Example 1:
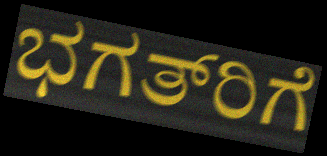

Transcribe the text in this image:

ಭಗತ್‍ರಿಗೆ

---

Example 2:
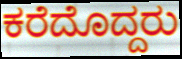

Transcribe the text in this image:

ಕರೆದೊದ್ದರು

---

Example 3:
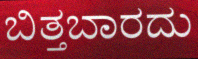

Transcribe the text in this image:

ಬಿತ್ತಬಾರದು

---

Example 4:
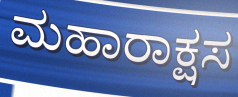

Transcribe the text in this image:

ಮಹಾರಾಕ್ಷಸ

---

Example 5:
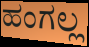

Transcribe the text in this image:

ಹಂಗಲ್ಲ